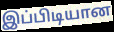
இப்பிடியான